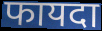
फायदा